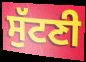
ਸੁੱਟਣੀ